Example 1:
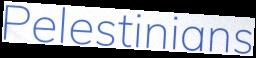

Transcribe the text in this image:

Pelestinians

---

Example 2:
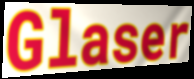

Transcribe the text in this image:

Glaser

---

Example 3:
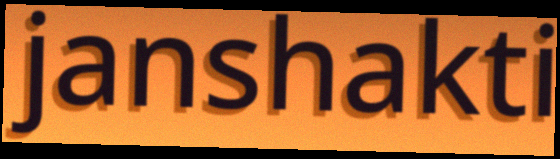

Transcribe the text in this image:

janshakti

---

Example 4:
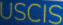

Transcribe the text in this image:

USCIS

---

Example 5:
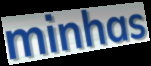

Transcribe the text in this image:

minhas